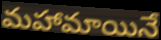
మహామాయినే